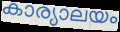
കാര്യാലയം